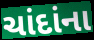
ચાંદાંના